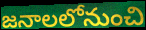
జనాలలోనుంచి